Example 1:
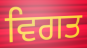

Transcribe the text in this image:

ਵਿਗਤ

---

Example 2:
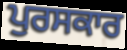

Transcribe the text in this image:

ਪੁਰਸਕਾਰ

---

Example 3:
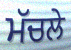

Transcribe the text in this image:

ਮੱਚਲੇ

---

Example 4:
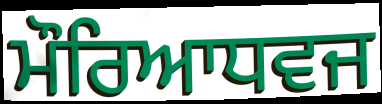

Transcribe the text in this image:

ਮੌਰਿਆਧਵਜ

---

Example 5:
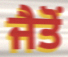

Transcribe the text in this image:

ਜੈਤੋਂ